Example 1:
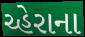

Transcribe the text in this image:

ચ્હેરાના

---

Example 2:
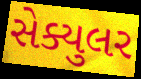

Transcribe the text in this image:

સેક્યુલર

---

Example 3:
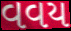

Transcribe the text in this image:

વવય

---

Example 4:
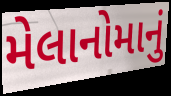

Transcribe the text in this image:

મેલાનોમાનું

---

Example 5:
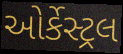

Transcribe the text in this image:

ઓર્કેસ્ટ્રલ